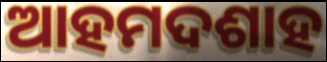
ଆହମଦଶାହ